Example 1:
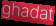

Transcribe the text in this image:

ghadat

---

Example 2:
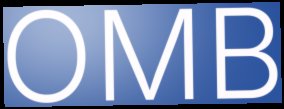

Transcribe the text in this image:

OMB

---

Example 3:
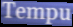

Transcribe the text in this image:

Tempu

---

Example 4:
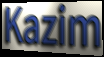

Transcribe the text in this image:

Kazim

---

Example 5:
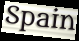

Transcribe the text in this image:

Spain